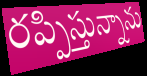
రప్పిస్తున్నాను